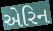
એરિન